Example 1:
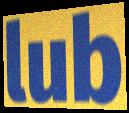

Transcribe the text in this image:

lub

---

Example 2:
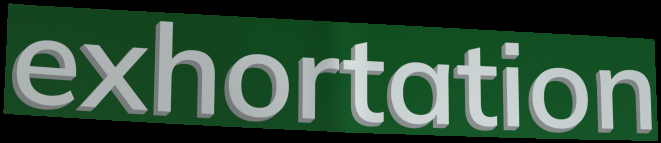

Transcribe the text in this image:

exhortation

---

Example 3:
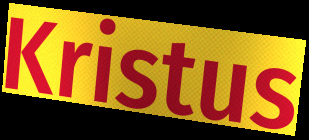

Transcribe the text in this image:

Kristus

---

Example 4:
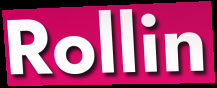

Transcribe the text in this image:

Rollin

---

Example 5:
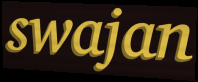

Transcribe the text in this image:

swajan